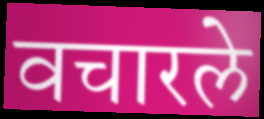
वचारले